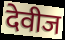
देवीज